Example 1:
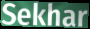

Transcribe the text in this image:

Sekhar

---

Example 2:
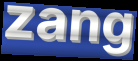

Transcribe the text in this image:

zang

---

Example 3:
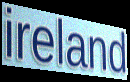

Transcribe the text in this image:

ireland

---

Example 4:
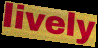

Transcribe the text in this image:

lively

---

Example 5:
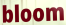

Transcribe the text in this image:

bloom